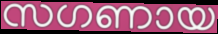
സഗണായ